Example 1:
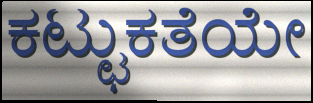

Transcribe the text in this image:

ಕಟ್ಟುಕತೆಯೇ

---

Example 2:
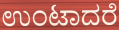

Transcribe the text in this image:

ಉಂಟಾದರೆ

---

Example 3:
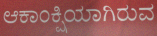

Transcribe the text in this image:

ಆಕಾಂಕ್ಷಿಯಾಗಿರುವ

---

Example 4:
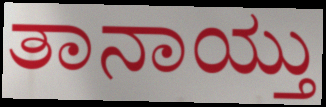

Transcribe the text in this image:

ತಾನಾಯ್ತು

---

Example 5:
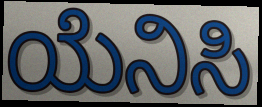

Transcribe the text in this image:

ಯೆನಿಸಿ